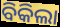
ବିକିଲା